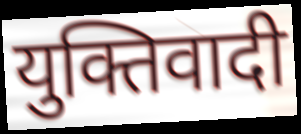
युक्तिवादी